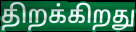
திறக்கிறது